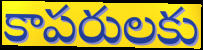
కాపరులకు